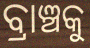
ବ୍ରାଞ୍ଚକୁ